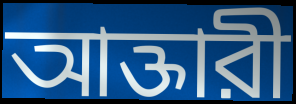
আক্তারী